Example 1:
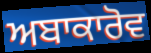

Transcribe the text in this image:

ਅਬਾਕਾਰੋਵ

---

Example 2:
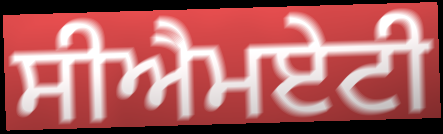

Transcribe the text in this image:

ਸੀਐਮਏਟੀ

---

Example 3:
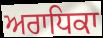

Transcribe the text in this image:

ਅਰਾਧਿਕਾ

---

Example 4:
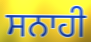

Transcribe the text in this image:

ਸਨਾਹੀ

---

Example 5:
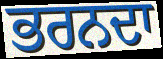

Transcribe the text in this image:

ਭਰਨਦਾ